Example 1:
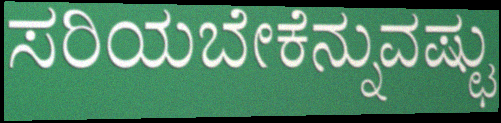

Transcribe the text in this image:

ಸರಿಯಬೇಕೆನ್ನುವಷ್ಟು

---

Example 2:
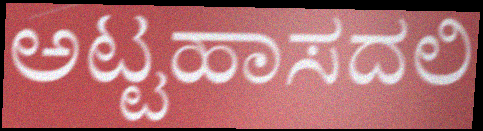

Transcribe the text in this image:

ಅಟ್ಟಹಾಸದಲಿ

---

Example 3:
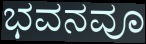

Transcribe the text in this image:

ಭವನವೂ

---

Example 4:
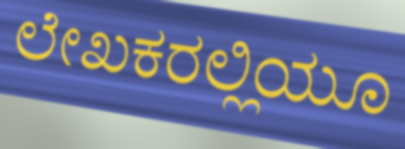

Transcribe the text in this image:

ಲೇಖಕರಲ್ಲಿಯೂ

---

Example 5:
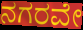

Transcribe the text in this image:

ನಗರವೇ